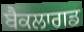
ਬੈਕਲਾਗਡ